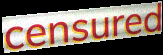
censured